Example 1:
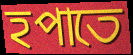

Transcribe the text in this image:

হপাতে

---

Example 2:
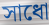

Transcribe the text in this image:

সাধো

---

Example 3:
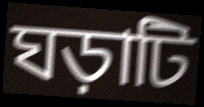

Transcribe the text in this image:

ঘড়াটি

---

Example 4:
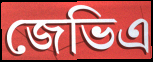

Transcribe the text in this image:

জেভিএ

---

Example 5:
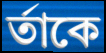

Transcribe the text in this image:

র্তাকে